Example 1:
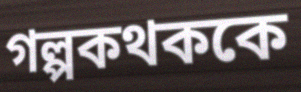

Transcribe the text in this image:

গল্পকথককে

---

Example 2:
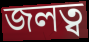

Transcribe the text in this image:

জলত্ব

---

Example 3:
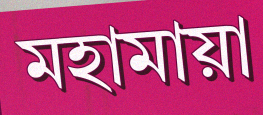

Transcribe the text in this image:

মহামায়া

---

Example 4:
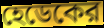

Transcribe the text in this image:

হেডেকের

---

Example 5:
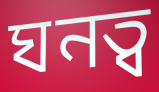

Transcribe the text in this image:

ঘনত্ব